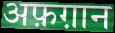
अफ़ग़ान